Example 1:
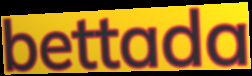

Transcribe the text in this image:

bettada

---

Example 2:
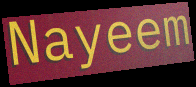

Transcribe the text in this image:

Nayeem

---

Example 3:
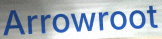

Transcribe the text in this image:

Arrowroot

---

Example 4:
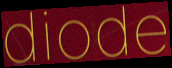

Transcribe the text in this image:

diode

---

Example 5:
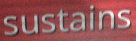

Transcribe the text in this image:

sustains